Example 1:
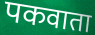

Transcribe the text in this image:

पकवाता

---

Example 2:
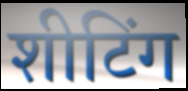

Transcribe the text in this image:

शीटिंग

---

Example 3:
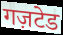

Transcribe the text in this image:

गज़टेड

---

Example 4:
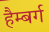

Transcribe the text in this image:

हैम्बर्ग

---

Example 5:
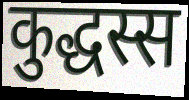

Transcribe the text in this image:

कुद्धस्स